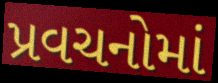
પ્રવચનોમાં